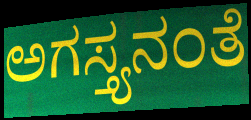
ಅಗಸ್ತ್ಯನಂತೆ